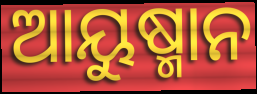
ଆୟୁଷ୍ମାନ